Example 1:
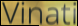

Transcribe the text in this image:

Vinati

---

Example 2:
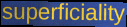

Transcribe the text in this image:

superficiality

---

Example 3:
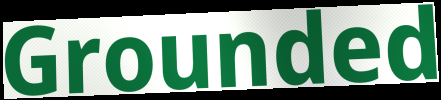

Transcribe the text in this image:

Grounded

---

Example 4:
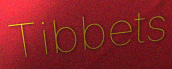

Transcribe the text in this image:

Tibbets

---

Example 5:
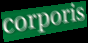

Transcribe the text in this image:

corporis